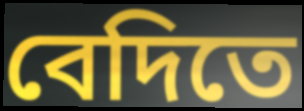
বেদিতে